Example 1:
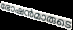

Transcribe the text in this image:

ഭോഷൻമാരുടെ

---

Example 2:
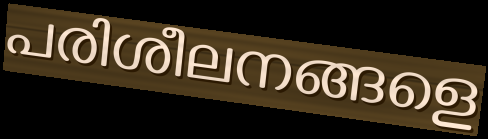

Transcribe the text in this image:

പരിശീലനങ്ങളെ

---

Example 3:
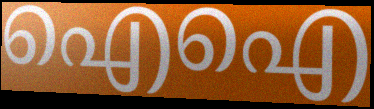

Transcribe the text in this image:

ഐഐ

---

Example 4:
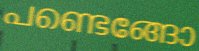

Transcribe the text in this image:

പണ്ടെങ്ങോ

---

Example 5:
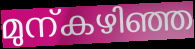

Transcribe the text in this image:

മുന്കഴിഞ്ഞ